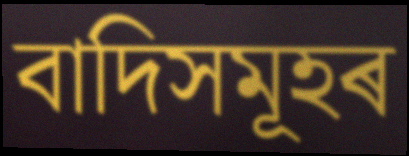
বাদিসমূহৰ